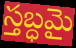
స్తబ్ధమై